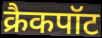
क्रैकपॉट